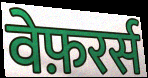
वेफ़रर्स